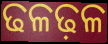
ଢଳଢ଼ଳ